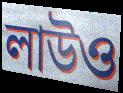
লাউও